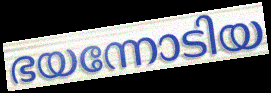
ഭയന്നോടിയ